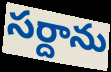
సర్దాను